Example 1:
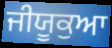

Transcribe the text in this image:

ਜੀਯੂਕੁਆ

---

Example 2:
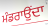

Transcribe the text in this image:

ਮੰਡਰਾਉਂਦਾ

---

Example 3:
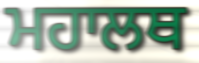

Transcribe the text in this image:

ਮਹਾਲਥ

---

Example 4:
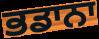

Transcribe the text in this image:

ਭਡਾਨਾ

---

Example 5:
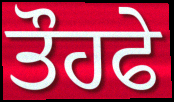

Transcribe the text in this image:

ਤੌਹਫੇ